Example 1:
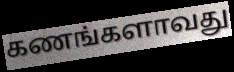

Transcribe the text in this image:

கணங்களாவது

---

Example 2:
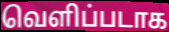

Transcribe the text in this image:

வெளிப்படாக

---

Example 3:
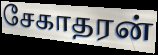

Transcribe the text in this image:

சேகாதரன்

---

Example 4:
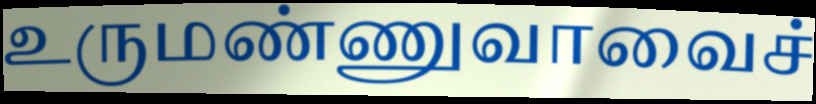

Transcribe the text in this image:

உருமண்ணுவாவைச்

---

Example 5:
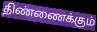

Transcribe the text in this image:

திண்ணைக்கும்